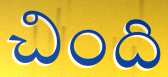
చింది